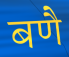
बणै